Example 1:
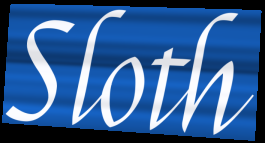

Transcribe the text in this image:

Sloth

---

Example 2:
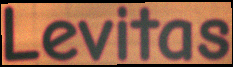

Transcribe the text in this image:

Levitas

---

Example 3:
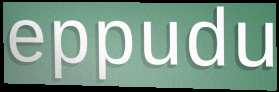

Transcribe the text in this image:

eppudu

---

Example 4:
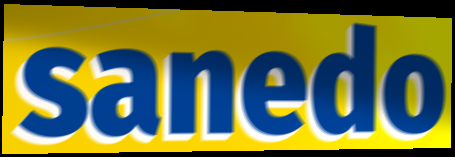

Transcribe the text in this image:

sanedo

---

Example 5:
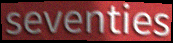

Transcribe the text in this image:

seventies